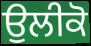
ਉਲੀਕੋ